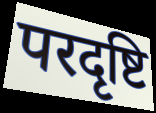
परदृष्टि